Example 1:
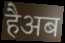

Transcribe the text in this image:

हैअब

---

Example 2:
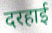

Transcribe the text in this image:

दरहाई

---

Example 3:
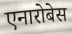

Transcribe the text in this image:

एनारोबेस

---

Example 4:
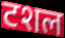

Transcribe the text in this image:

टशल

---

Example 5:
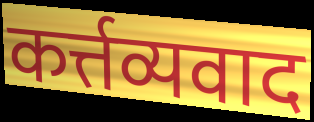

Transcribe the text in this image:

कर्त्तव्यवाद